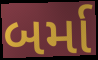
બર્મા